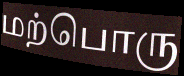
மற்பொரு